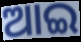
ଆଇ